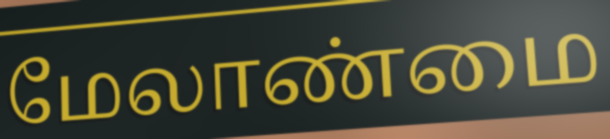
மேலாண்மை